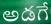
అడగే